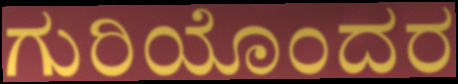
ಗುರಿಯೊಂದರ